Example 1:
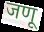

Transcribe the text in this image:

जणू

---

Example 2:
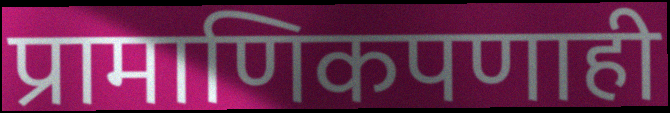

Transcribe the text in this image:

प्रामाणिकपणाही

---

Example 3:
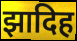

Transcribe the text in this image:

झादिह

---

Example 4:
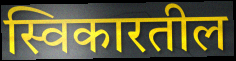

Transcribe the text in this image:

स्विकारतील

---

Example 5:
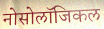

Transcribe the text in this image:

नोसोलॉजिकल